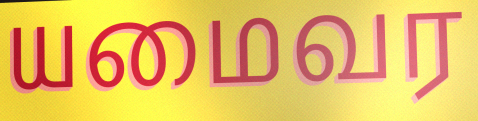
யமைவர